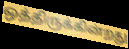
ஒத்திருக்கின்றது